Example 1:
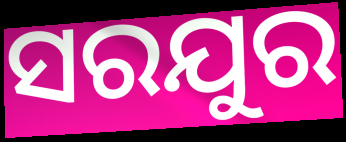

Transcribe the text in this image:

ସରଯୁର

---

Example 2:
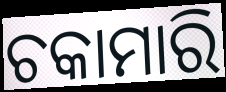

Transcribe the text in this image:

ଚକାମାରି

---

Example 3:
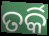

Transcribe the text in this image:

ତର୍କି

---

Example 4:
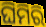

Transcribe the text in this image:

ଘିମିରି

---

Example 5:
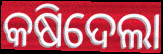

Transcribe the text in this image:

କଷିଦେଲା